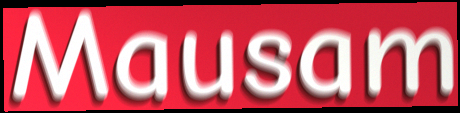
Mausam